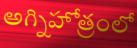
అగ్నిహోత్రంలో